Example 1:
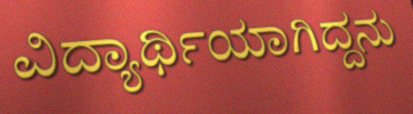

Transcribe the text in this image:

ವಿದ್ಯಾರ್ಥಿಯಾಗಿದ್ದನು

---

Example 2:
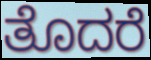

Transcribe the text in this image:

ತೊದರೆ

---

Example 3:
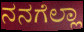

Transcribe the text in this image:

ನನಗೆಲ್ಲಾ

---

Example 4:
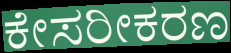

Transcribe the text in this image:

ಕೇಸರೀಕರಣ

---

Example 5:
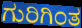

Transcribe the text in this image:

ಗುರಿಗಿಂತ